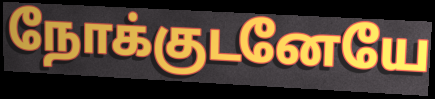
நோக்குடனேயே